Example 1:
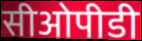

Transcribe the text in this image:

सीओपीडी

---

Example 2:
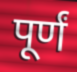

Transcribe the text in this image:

पूर्णं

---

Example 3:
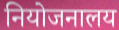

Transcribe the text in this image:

नियोजनालय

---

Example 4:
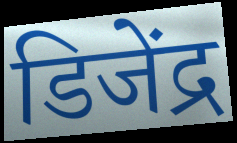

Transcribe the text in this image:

डिजेंद्र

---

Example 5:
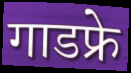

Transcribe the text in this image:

गाडफ्रे